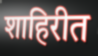
शाहिरीत